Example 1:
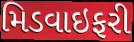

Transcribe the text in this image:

મિડવાઇફરી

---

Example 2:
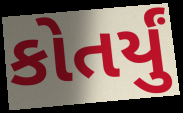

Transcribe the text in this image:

કોતર્યું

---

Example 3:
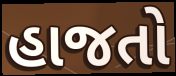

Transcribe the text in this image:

હાજતો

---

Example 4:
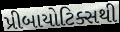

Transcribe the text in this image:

પ્રીબાયોટિક્સથી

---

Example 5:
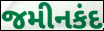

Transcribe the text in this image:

જમીનકંદ